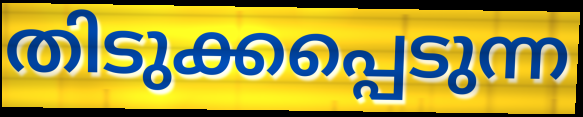
തിടുക്കപ്പെടുന്ന